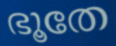
ഭൂതേ